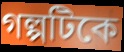
গল্পটিকে